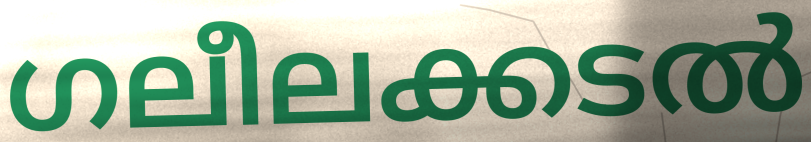
ഗലീലക്കടൽ